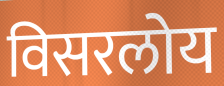
विसरलोय